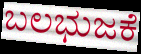
ಬಲಭುಜಕೆ